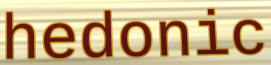
hedonic